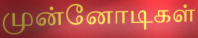
முன்னோடிகள்